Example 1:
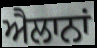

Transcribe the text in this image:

ਐਲਾਨਾਂ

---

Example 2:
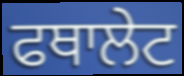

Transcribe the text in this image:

ਫਥਾਲੇਟ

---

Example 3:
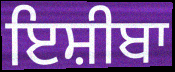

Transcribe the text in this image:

ਇਸ਼ੀਬਾ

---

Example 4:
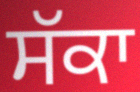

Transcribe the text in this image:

ਸੱਕਾ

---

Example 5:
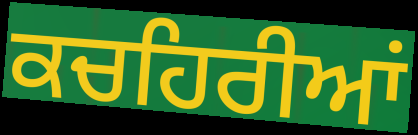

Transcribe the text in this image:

ਕਚਹਿਰੀਆਂ